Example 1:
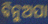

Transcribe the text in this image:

ବିନୁଅପା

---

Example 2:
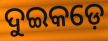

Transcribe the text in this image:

ଦୁଇକଡ଼େ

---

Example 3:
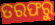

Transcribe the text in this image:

ତରଫରୁ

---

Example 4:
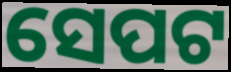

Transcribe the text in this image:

ସେପଟ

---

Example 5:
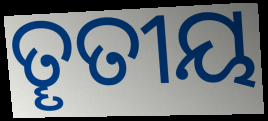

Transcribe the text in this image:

ତୄତୀୟ